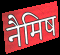
नैमिष